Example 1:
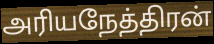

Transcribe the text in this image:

அரியநேத்திரன்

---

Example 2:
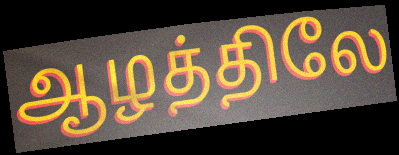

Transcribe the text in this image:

ஆழத்திலே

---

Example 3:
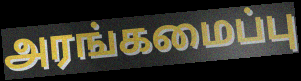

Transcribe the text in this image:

அரங்கமைப்பு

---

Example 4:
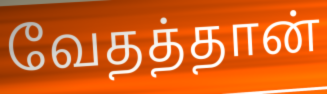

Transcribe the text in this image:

வேதத்தான்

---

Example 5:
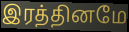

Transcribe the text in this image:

இரத்தினமே